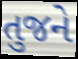
તુજને